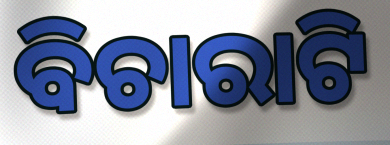
ବିଚାରାଟି